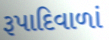
રૂપાદિવાળાં